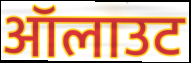
ऑलाउट